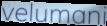
velumani